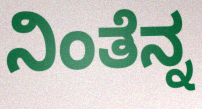
ನಿಂತೆನ್ನ